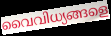
വൈവിധ്യങ്ങളെ